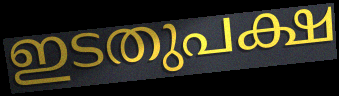
ഇടതുപക്ഷ